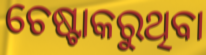
ଚେଷ୍ଟାକରୁଥିବା